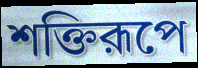
শক্তিরূপে